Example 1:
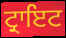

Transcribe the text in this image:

ਟ੍ਰਾਇਟ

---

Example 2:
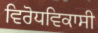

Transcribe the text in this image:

ਵਿਰੋਧਵਿਕਾਸੀ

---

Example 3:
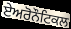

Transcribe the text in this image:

ਏਅਰੋਨੌਟਿਕਲ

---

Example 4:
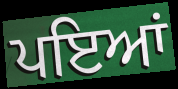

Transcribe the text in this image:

ਪਇਆਂ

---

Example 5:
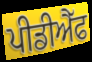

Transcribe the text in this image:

ਪੀਡੀਐੱਫ